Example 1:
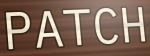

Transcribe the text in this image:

PATCH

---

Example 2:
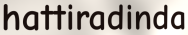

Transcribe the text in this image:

hattiradinda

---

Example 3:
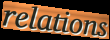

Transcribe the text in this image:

relations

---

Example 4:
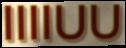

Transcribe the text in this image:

IIIIUU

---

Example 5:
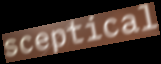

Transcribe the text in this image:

sceptical